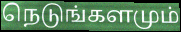
நெடுங்களமும்